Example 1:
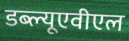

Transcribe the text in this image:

डब्ल्यूएवीएल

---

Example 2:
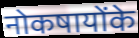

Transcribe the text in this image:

नोकषायोंके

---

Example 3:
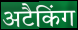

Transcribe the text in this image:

अटैकिंग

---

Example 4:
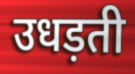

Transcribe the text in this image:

उधड़ती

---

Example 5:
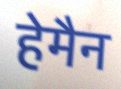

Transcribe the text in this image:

हेमैन